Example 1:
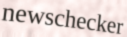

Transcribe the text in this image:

newschecker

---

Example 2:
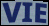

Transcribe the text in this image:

VIE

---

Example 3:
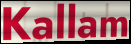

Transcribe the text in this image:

Kallam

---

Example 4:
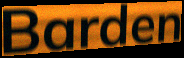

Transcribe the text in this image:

Barden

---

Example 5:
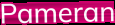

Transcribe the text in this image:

Pameran